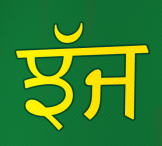
ਝੱਜ